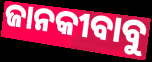
ଜାନକୀବାବୁ